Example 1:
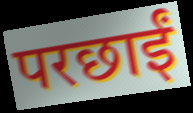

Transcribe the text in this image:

परछाईं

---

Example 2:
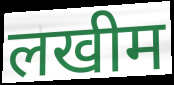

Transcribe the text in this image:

लखीम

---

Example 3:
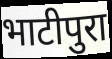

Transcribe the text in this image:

भाटीपुरा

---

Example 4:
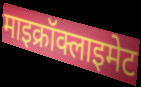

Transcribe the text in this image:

माइक्रॉक्लाइमेट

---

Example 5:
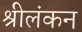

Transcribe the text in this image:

श्रीलंकन